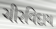
ચીરવિદાય